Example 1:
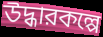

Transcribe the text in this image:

উদ্ধারকল্পে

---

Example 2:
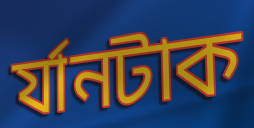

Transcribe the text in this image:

র্যানটাক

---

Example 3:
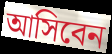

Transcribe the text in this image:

আসিবেন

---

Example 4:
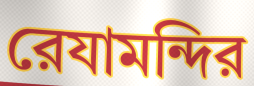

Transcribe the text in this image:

রেযামন্দির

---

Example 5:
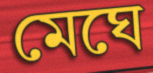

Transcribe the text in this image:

মেঘে